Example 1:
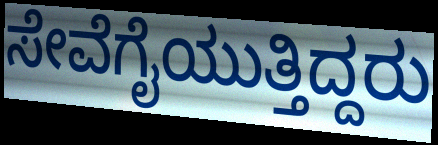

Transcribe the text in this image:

ಸೇವೆಗೈಯುತ್ತಿದ್ದರು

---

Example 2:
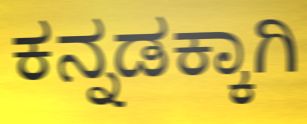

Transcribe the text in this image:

ಕನ್ನಡಕ್ಕಾಗಿ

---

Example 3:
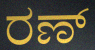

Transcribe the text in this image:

ರಣ್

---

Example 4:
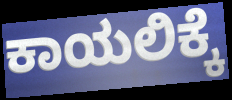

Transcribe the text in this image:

ಕಾಯಲಿಕ್ಕೆ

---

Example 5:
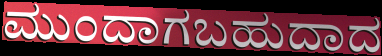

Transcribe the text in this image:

ಮುಂದಾಗಬಹುದಾದ